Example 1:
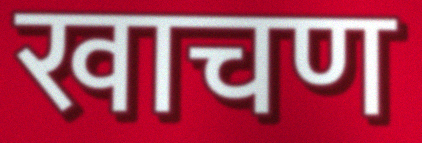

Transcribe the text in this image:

खाचण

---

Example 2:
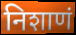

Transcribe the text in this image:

निशाणं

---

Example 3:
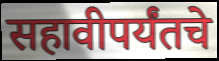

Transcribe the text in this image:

सहावीपर्यंतचे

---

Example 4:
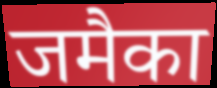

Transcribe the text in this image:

जमैका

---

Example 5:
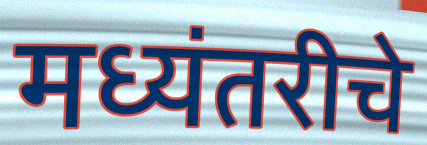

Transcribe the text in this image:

मध्यंतरीचे